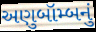
અણુબૉમ્બનું